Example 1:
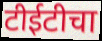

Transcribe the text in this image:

टीईटीचा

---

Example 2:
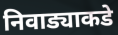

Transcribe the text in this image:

निवाड्याकडे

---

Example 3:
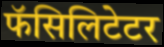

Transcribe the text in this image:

फॅसिलिटेटर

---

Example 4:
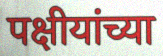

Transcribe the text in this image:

पक्षीयांच्या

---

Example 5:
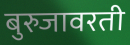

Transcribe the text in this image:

बुरुजावरती